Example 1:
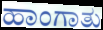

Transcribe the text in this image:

ಹಾಂಗಾತು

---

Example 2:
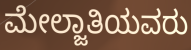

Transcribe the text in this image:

ಮೇಲ್ಜಾತಿಯವರು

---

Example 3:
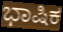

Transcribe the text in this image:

ಭಾಷಿಕ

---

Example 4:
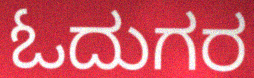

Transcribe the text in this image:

ಓದುಗರ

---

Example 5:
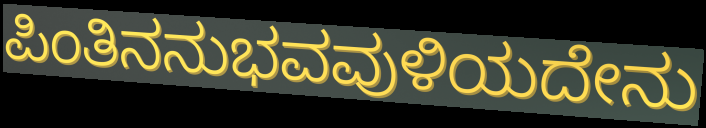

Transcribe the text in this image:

ಪಿಂತಿನನುಭವವುಳಿಯದೇನು